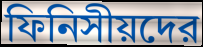
ফিনিসীয়দের